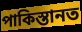
পাকিস্তানত